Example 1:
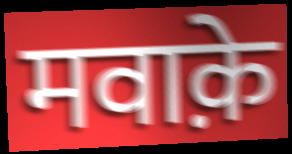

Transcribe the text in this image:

मवाक़े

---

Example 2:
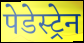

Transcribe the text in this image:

पेडेस्ट्रेन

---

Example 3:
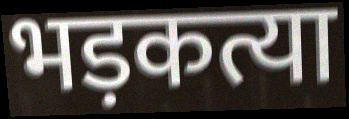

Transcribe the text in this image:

भड़कत्या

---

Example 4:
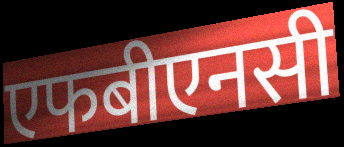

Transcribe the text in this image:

एफबीएनसी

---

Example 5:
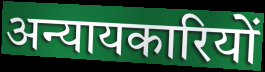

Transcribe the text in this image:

अन्यायकारियों